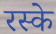
रस्के